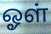
ஓள்